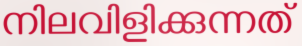
നിലവിളിക്കുന്നത്